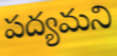
పద్యమని